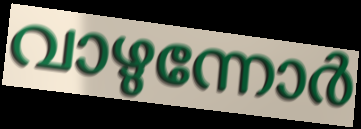
വാഴുന്നോർ